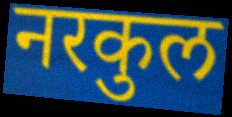
नरकुल